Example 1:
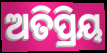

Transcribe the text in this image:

ଅତିପ୍ରିୟ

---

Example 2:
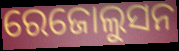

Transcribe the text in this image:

ରେଜୋଲୁସନ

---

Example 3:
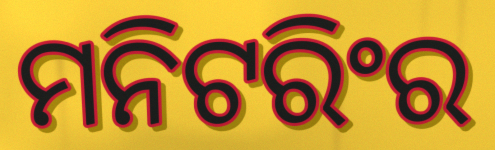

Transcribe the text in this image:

ମନିଟରିଂର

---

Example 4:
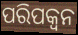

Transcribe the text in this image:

ପରିପକ୍ବନ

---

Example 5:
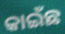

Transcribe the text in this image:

କାଇଁଛ